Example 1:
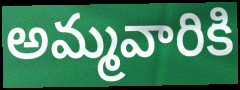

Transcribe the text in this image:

అమ్మవారికి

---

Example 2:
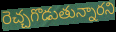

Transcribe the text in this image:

రెచ్చగొడుతున్నారని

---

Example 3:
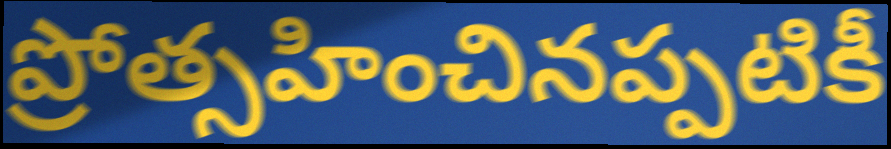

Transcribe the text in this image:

ప్రోత్సహించినప్పటికీ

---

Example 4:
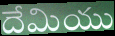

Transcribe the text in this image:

దేమియు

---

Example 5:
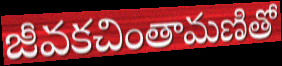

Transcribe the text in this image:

జీవకచింతామణితో